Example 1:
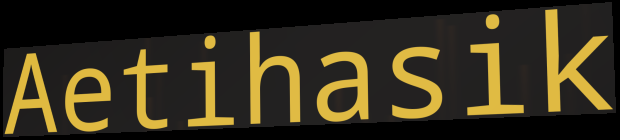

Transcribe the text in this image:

Aetihasik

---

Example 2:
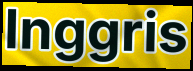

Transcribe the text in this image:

Inggris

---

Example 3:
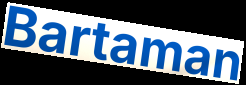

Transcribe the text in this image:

Bartaman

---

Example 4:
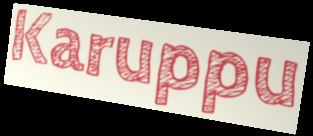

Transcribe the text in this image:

Karuppu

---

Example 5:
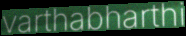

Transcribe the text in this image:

varthabharthi